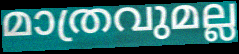
മാത്രവുമല്ല